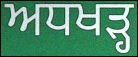
ਅਧਖੜ੍ਹ